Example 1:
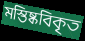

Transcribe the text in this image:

মস্তিষ্কবিকৃত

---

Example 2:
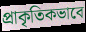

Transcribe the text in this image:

প্রাকৃতিকভাবে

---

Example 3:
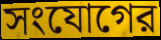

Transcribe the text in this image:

সংযোগের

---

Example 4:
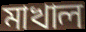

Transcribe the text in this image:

মাখাল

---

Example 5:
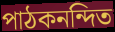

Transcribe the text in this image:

পাঠকনন্দিত